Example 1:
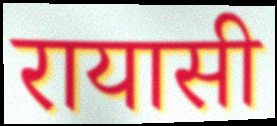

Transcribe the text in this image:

रायासी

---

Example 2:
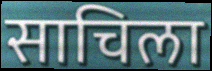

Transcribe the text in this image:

साचिला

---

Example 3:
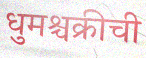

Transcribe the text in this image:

धुमश्चक्रीची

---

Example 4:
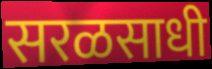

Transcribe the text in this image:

सरळसाधी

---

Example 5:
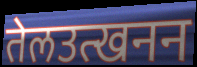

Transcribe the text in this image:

तेलउत्खनन